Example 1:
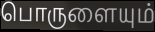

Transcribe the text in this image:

பொருளையும்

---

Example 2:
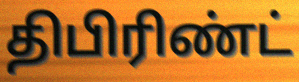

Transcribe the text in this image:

திபிரிண்ட்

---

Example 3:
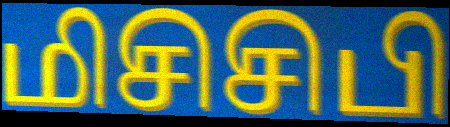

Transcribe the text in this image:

மிசிசிபி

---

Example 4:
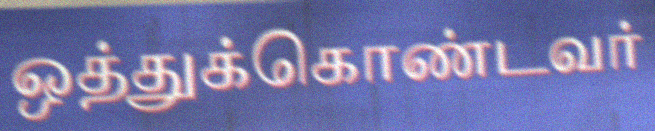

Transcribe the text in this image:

ஒத்துக்கொண்டவர்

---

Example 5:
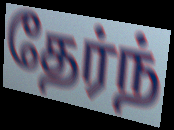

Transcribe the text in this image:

தேர்ந்